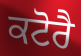
ਕਟੋਰੈ